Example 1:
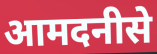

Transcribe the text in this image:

आमदनीसे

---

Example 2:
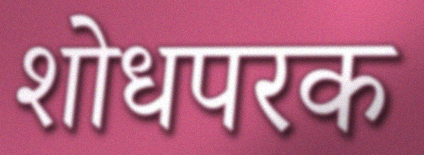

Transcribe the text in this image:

शोधपरक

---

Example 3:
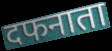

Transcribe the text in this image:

दफनाता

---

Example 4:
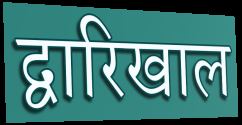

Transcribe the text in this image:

द्वारिखाल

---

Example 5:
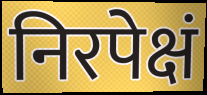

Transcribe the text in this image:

निरपेक्षं